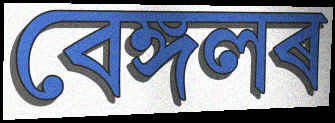
বেঙ্গলৰ